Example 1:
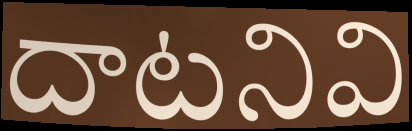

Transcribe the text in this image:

దాటనివి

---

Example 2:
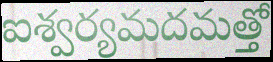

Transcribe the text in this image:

ఐశ్వర్యమదమత్తో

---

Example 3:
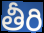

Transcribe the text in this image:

తీరి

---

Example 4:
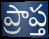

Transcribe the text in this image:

ప్రాప్త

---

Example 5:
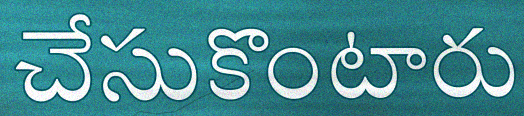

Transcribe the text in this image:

చేసుకొంటారు